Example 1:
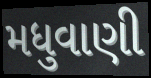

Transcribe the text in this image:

મધુવાણી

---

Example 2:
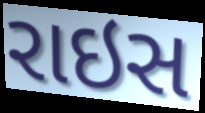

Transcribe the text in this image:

રાઇસ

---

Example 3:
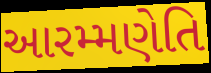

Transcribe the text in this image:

આરમ્મણેતિ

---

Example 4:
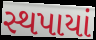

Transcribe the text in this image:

સ્થપાયાં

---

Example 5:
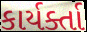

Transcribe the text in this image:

કાર્યર્ક્તા